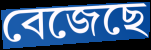
বেজেছে